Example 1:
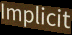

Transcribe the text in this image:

Implicit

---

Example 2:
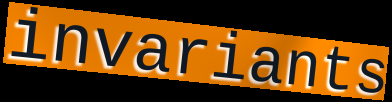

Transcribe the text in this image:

invariants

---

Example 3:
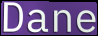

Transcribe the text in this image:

Dane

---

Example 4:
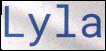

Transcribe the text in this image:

Lyla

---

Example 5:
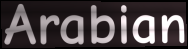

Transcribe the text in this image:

Arabian